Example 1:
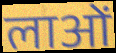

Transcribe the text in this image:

लाओं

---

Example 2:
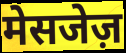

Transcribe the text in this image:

मेसजेज़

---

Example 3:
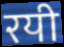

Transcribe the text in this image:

रयी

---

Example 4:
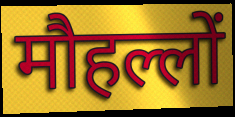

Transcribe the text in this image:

मौहल्लों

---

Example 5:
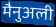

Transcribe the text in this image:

मैनुअली